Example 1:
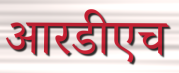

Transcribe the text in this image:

आरडीएच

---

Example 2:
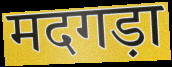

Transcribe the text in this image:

मदगड़ा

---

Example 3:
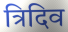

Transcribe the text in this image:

त्रिदिव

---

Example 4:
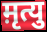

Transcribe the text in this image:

म़ृत्यु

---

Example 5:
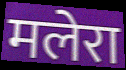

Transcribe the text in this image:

मलेरा